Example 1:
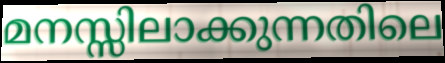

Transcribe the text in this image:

മനസ്സിലാക്കുന്നതിലെ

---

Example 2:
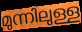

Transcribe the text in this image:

മുന്നിലുള്ള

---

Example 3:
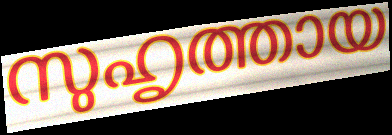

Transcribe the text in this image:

സുഹൃത്തായ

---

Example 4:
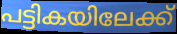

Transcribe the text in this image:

പട്ടികയിലേക്ക്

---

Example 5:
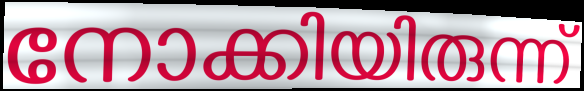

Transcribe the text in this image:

നോക്കിയിരുന്ന്